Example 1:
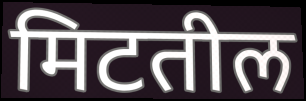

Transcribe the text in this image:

मिटतील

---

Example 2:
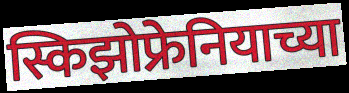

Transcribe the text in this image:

स्किझोफ्रेनियाच्या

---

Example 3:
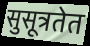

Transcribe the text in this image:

सुसूत्रतेत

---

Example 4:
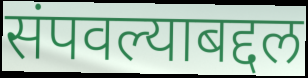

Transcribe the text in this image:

संपवल्याबद्दल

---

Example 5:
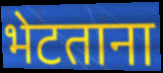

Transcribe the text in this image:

भेटताना